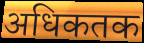
अधिकतक